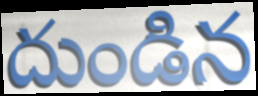
దుండిన